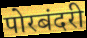
पोरबंदरी